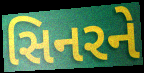
સિનરને